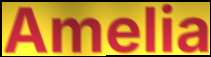
Amelia